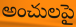
అంచులపై